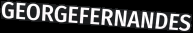
GEORGEFERNANDES